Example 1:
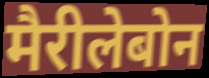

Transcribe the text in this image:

मैरीलेबोन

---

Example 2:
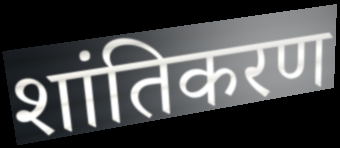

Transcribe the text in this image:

शांतिकरण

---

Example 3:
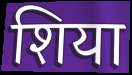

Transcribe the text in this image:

शिया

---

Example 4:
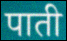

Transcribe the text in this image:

पाती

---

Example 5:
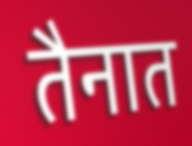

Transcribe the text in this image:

तैनात